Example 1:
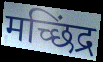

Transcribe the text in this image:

मच्छिंद्र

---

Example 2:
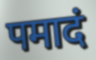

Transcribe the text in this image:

पमादं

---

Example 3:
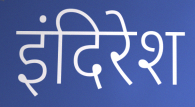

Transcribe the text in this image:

इंदिरेश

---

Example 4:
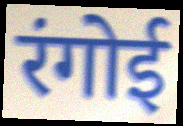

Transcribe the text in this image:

रंगोई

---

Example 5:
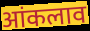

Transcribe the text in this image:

आंकलाव